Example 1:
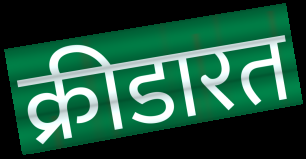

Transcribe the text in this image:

क्रीडारत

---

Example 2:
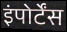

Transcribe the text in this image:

इंपोर्टेंस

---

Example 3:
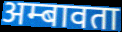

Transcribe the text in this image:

अम्बावता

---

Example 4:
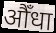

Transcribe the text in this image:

औँधा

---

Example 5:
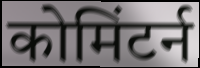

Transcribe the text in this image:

कोमिंटर्न